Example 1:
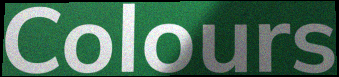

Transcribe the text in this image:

Colours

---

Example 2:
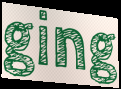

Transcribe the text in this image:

ging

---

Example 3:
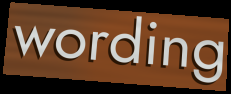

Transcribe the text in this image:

wording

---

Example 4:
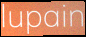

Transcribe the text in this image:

lupain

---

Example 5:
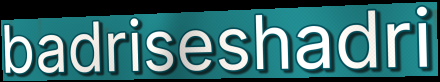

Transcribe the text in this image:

badriseshadri